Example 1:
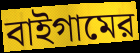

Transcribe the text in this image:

বাইগামের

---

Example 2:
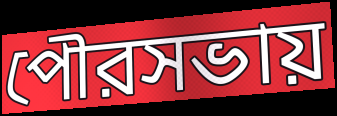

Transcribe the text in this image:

পৌরসভায়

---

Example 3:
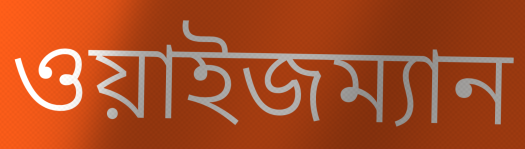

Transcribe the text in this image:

ওয়াইজম্যান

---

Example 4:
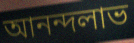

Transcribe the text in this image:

আনন্দলাভ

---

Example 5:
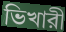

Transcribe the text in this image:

ভিখারী